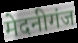
मेदनीगंज